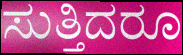
ಸುತ್ತಿದರೂ